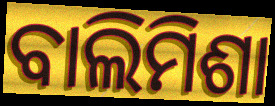
ବାଲିମିଶା